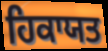
ਹਿਕਾਯਤ